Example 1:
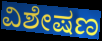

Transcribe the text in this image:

ವಿಶೇಷಣ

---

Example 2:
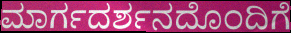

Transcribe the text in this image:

ಮಾರ್ಗದರ್ಶನದೊಂದಿಗೆ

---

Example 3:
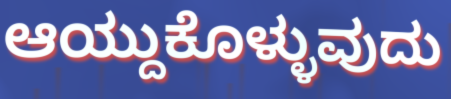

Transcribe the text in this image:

ಆಯ್ದುಕೊಳ್ಳುವುದು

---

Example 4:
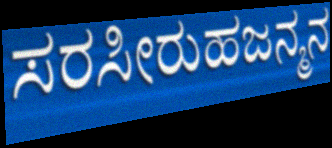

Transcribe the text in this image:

ಸರಸೀರುಹಜನ್ಮನ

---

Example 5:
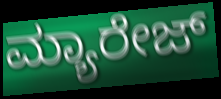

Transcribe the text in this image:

ಮ್ಯಾರೇಜ್